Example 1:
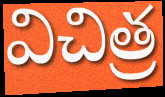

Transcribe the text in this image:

విచిత్ర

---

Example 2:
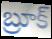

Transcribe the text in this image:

బ్రూక్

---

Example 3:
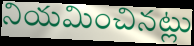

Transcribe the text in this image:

నియమించినట్లు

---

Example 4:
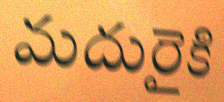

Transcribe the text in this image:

మదురైకి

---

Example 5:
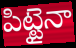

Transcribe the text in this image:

పిట్టైనా